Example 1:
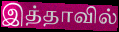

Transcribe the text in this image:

இத்தாவில்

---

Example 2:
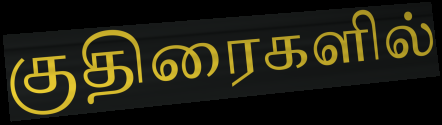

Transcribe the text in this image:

குதிரைகளில்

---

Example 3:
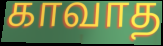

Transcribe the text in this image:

காவாத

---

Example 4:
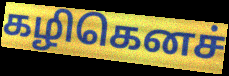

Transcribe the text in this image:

கழிகெனச்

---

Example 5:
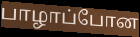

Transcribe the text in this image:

பாழாப்போன